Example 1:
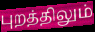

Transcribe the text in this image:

புறத்திலும்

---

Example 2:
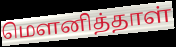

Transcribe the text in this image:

மௌனித்தாள்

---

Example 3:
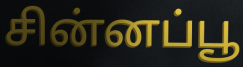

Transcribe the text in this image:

சின்னப்பூ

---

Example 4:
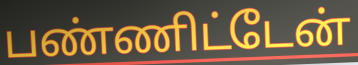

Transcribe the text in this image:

பண்ணிட்டேன்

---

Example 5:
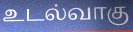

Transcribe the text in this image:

உடல்வாகு